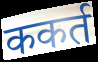
ककर्त